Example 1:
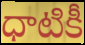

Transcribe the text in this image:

ధాటికీ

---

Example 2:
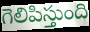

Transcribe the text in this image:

గెలిపిస్తుంది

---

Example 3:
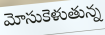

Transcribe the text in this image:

మోసుకెళుతున్న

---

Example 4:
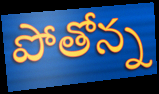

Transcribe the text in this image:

పోతోన్న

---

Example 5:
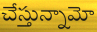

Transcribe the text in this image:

చేస్తున్నామో